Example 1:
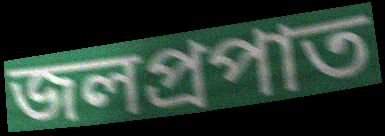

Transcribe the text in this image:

জলপ্রপাত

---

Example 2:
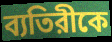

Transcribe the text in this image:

ব্যতিরীকে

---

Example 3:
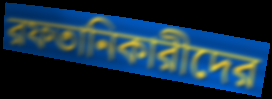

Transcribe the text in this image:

রফতানিকারীদের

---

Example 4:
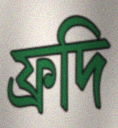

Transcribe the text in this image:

ফ্রদি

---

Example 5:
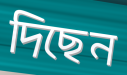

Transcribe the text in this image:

দিছেন